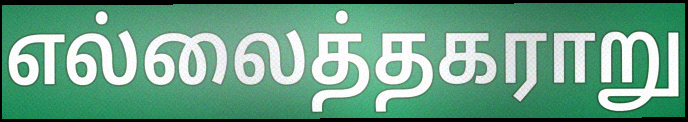
எல்லைத்தகராறு